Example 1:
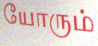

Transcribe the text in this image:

யோரும்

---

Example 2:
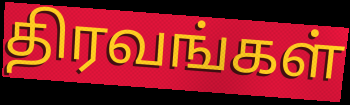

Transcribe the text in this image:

திரவங்கள்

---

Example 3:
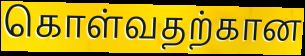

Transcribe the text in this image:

கொள்வதற்கான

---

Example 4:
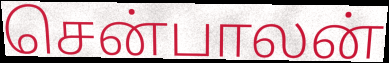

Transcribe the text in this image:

சென்பாலன்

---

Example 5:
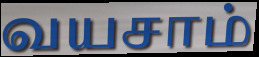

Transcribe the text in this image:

வயசாம்